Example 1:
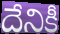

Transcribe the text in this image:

దేనికీ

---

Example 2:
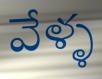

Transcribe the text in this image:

వేళ్ళ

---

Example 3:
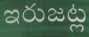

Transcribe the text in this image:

ఇరుజట్ల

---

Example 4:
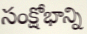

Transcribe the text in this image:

సంక్షోభాన్ని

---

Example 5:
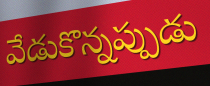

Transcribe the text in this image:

వేడుకొన్నప్పుడు